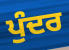
ਪੁੰਦਰ